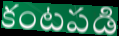
కంటపడి